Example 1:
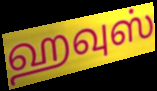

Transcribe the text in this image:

ஹவுஸ்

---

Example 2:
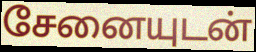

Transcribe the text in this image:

சேனையுடன்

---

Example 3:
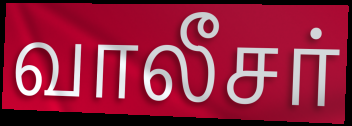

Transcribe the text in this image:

வாலீசர்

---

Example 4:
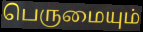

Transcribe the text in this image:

பெருமையும்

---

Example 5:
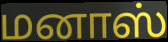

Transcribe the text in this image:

மனாஸ்